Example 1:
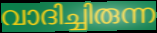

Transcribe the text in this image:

വാദിച്ചിരുന്ന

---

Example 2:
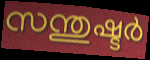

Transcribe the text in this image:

സന്തുഷ്ടർ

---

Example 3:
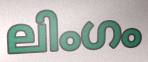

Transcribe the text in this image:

ലിംഗം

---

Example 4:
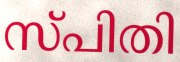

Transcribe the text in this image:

സ്പിതി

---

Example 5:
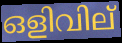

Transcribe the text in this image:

ഒളിവില്